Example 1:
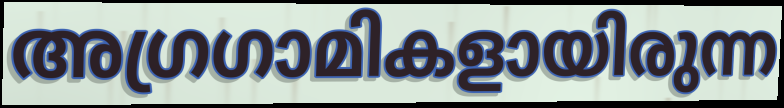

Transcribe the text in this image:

അഗ്രഗാമികളായിരുന്ന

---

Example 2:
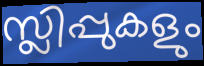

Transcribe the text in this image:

സ്ലിപ്പുകളും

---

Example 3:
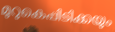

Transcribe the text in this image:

മുറുകെപ്പിടിക്കയും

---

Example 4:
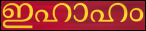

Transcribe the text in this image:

ഇഹാഹം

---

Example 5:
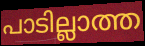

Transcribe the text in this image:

പാടില്ലാത്ത